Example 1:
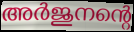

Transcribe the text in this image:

അർജുനന്റെ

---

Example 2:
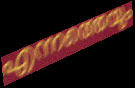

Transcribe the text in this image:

എന്നത്തെയും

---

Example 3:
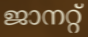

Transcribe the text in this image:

ജാനറ്റ്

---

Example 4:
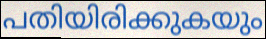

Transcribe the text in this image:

പതിയിരിക്കുകയും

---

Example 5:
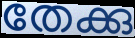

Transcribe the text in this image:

തേക്കു